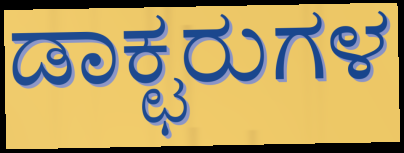
ಡಾಕ್ಟರುಗಳ